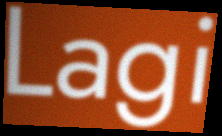
Lagi